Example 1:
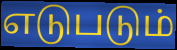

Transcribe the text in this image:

எடுபடும்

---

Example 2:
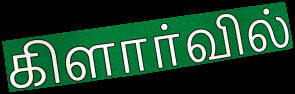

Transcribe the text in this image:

கிளார்வில்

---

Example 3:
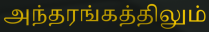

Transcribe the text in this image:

அந்தரங்கத்திலும்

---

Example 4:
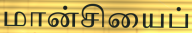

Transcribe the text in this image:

மான்சியைப்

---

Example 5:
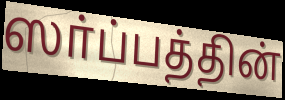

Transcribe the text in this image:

ஸர்ப்பத்தின்